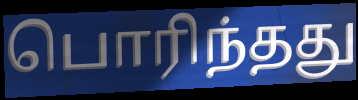
பொரிந்தது